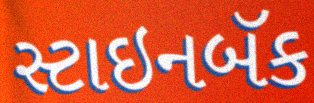
સ્ટાઇનબૅક